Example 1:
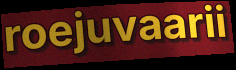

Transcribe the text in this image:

roejuvaarii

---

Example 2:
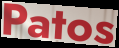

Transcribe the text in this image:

Patos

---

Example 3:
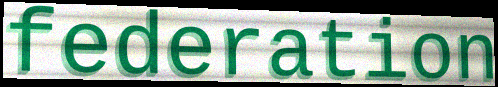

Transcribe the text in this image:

federation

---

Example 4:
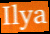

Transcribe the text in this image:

Ilya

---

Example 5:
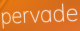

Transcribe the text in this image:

pervade